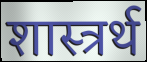
शास्त्रर्थ